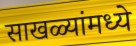
साखळ्यांमध्ये